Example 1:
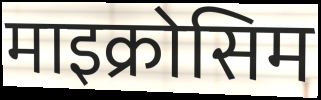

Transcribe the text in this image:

माइक्रोसिम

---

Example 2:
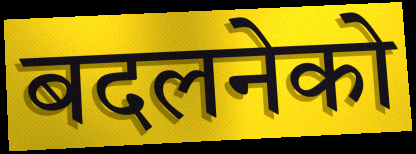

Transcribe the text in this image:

बदलनेको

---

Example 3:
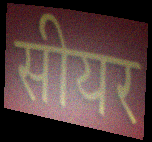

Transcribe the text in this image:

सीयर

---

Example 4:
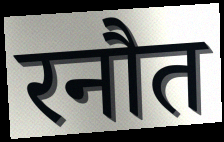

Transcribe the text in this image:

रनौत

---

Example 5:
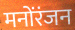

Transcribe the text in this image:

मनोंरंजन